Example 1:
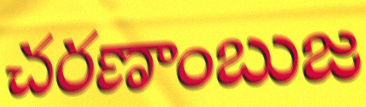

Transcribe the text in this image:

చరణాంబుజ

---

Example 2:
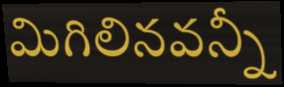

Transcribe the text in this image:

మిగిలినవన్నీ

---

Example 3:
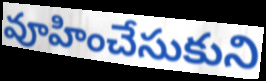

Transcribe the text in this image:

వూహించేసుకుని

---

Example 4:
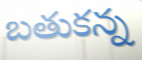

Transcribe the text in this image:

బతుకన్న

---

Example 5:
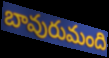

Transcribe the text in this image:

బావురుమంది